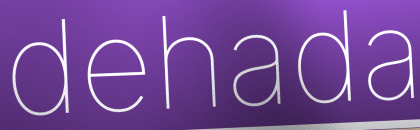
dehada